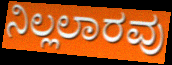
ನಿಲ್ಲಲಾರವು